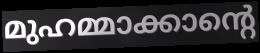
മുഹമ്മാക്കാന്റെ